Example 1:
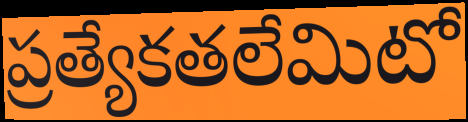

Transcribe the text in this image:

ప్రత్యేకతలేమిటో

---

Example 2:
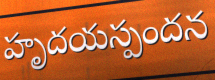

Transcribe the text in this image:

హృదయస్పందన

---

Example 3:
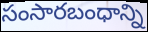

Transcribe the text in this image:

సంసారబంధాన్ని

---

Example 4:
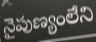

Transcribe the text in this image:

నైపుణ్యంలేని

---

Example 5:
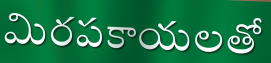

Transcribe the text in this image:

మిరపకాయలతో